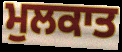
ਮੁਲਕਾਤ